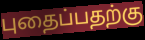
புதைப்பதற்கு